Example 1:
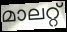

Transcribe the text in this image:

മാലറ്റ്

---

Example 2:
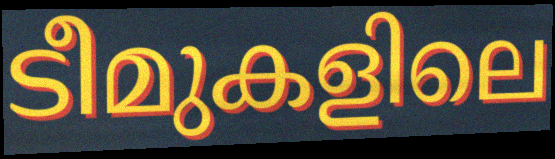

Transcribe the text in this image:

ടീമുകളിലെ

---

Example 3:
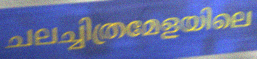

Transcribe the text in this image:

ചലച്ചിത്രമേളയിലെ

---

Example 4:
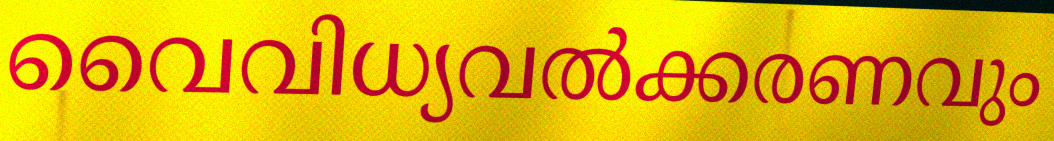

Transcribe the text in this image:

വൈവിധ്യവൽക്കരണവും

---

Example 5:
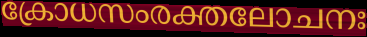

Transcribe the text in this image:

ക്രോധസംരക്തലോചനഃ